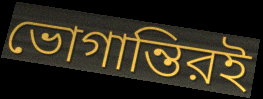
ভোগান্তিরই